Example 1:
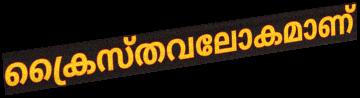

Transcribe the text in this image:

ക്രൈസ്തവലോകമാണ്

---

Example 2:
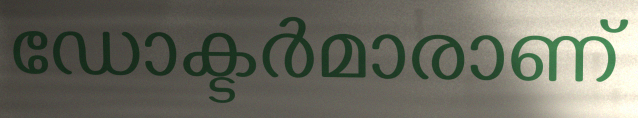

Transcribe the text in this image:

ഡോക്ടർമാരാണ്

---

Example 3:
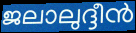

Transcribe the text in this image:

ജലാലുദ്ദീൻ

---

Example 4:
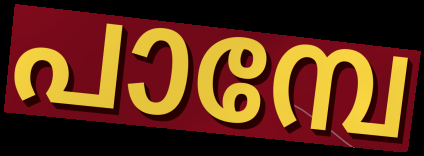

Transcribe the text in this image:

പാമ്പേ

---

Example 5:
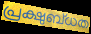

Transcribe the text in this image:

പ്രക്ഷുബ്ധത